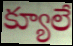
క్యూలే